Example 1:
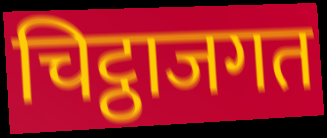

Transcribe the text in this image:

चिट्ठाजगत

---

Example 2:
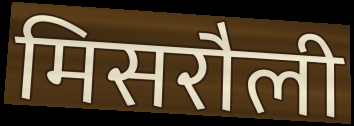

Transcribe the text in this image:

मिसरौली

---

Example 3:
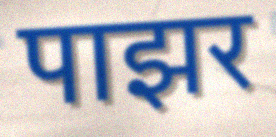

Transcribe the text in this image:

पाझर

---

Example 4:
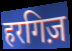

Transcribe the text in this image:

हरगिज़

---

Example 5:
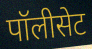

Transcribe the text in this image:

पॉलीसेट